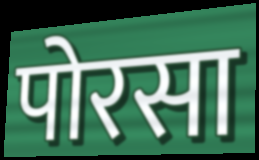
पोरसा